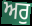
ਅਰੁ